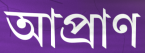
আপ্ৰাণ